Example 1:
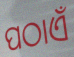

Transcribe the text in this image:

ପଠାଏଁ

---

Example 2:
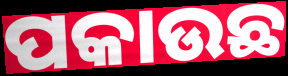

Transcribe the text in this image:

ପକାଉଛ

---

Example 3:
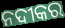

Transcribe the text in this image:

ନଦୀକର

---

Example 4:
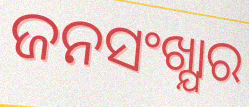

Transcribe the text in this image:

ଜନସଂଖ୍ଯାର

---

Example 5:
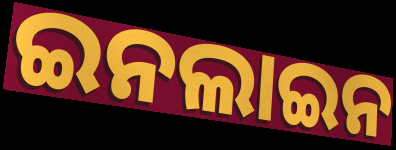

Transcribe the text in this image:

ଇନଲାଇନ